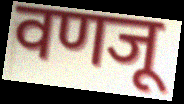
वणजू